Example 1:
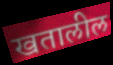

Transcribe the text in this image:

खतालील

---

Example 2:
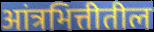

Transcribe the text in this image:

आंत्रभित्तीतील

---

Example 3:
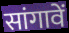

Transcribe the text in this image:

सांगावें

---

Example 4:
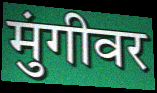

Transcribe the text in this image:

मुंगीवर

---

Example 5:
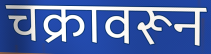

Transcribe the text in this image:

चक्रावरून